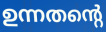
ഉന്നതന്റെ